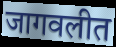
जागवलीत